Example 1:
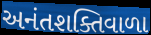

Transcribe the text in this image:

અનંતશક્તિવાળા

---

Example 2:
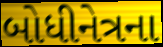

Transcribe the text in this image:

બોધીનેત્રના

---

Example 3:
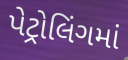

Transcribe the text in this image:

પેટ્રોલિંગમાં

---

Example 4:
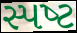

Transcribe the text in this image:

સ્પષ્‍ટ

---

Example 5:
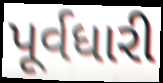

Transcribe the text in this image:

પૂર્વધારી